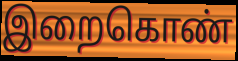
இறைகொண்